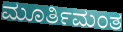
ಮೂರ್ತಿಮಂತ